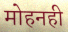
मोहनही